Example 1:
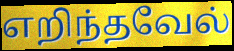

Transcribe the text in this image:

எறிந்தவேல்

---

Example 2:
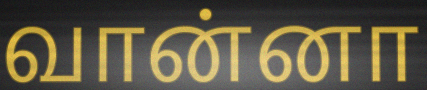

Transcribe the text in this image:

வான்னா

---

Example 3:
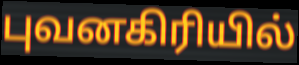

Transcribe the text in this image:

புவனகிரியில்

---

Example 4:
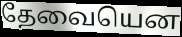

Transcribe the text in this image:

தேவையென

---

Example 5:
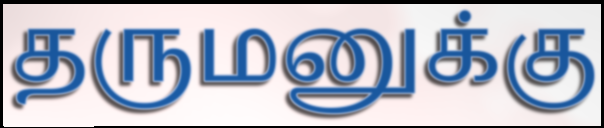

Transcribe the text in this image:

தருமனுக்கு